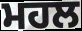
ਮਹਲ